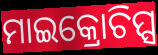
ମାଇକ୍ରୋଚିପ୍ସ